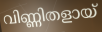
വിണ്ണിതളായ്